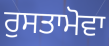
ਰੁਸਤਾਮੋਵਾ